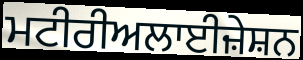
ਮਟੀਰੀਅਲਾਈਜ਼ੇਸ਼ਨ